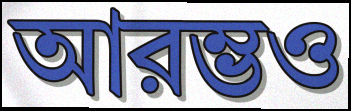
আরম্ভও